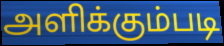
அளிக்கும்படி